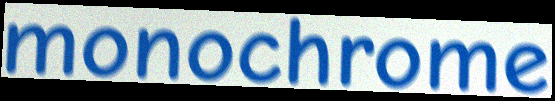
monochrome